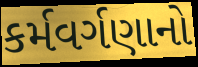
કર્મવર્ગણાનો